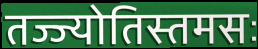
तज्ज्योतिस्तमसः